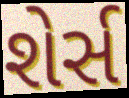
શેર્સ